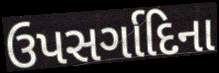
ઉપસર્ગાદિના